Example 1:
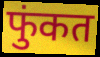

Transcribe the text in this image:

फुंकत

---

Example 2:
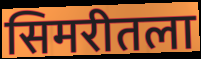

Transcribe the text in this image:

सिमरीतला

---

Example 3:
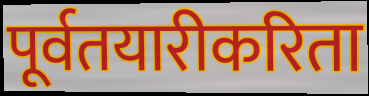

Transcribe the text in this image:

पूर्वतयारीकरिता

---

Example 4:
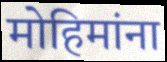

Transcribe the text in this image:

मोहिमांना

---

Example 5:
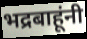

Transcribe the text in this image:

भद्रबाहूंनी